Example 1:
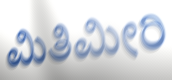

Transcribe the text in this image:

ಮಿತಿಮೀರಿ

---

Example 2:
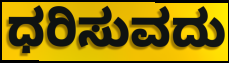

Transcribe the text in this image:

ಧರಿಸುವದು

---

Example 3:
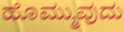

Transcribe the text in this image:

ಹೊಮ್ಮುವುದು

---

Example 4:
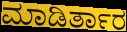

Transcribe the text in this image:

ಮಾಡಿರ್ತಾರ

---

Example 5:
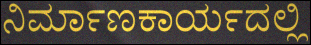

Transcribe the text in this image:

ನಿರ್ಮಾಣಕಾರ್ಯದಲ್ಲಿ